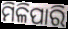
ମିଳିପାରି